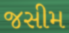
જસીમ